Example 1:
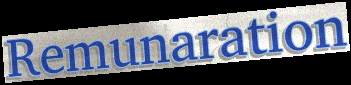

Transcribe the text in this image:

Remunaration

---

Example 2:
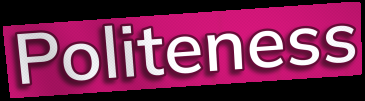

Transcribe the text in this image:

Politeness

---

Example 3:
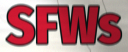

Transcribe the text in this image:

SFWs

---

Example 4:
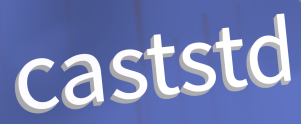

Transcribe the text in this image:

caststd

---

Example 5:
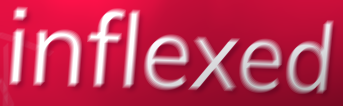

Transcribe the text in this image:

inflexed